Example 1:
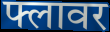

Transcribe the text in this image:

फ्लावर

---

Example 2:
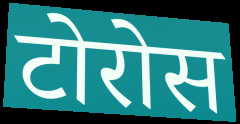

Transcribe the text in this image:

टोरोस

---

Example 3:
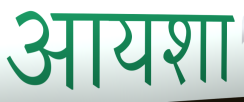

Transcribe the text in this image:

आयशा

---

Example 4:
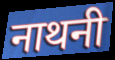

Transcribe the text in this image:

नाथनी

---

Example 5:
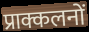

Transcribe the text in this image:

प्राक्कलनों